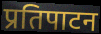
प्रतिपाटन